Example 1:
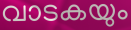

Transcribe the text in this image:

വാടകയും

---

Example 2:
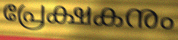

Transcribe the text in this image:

പ്രേക്ഷകനും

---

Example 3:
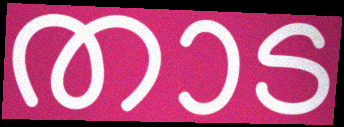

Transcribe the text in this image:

താട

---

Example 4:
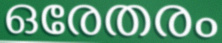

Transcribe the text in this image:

ഒരേതരം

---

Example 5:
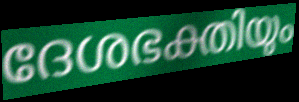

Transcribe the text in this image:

ദേശഭക്തിയും